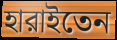
হারাইতেন